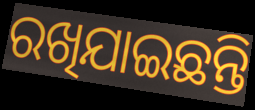
ରଖିଯାଇଛନ୍ତି